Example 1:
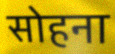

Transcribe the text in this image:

सोहना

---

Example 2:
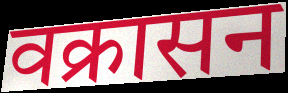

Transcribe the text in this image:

वक्रासन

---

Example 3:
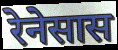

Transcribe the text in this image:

रेनेसास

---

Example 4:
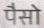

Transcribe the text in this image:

पैसो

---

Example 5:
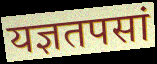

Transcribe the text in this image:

यज्ञतपसां